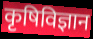
कृषिविज्ञान